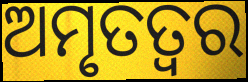
ଅମୃତତ୍ଵର